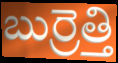
బుర్రెత్తి